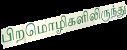
பிறமொழிகளிலிருந்து